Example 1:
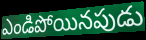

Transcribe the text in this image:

ఎండిపోయినపుడు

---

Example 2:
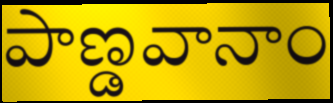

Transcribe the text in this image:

పాణ్డవానాం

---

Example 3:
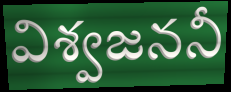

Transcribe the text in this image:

విశ్వజననీ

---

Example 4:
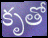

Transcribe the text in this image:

కృతో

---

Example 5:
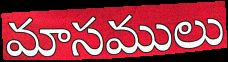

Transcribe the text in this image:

మాసములు